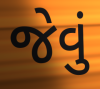
જેવું